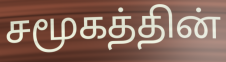
சமூகத்தின்